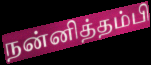
நன்னித்தம்பி